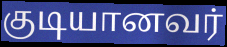
குடியானவர்